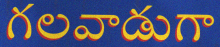
గలవాడుగా